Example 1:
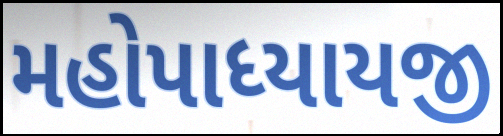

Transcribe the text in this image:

મહોપાધ્યાયજી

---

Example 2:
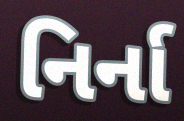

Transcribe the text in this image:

નિર્ના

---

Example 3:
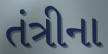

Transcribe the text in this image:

તંત્રીના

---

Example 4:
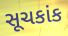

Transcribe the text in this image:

સૂચકાંક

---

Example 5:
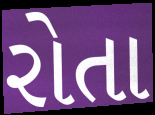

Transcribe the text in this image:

રોતા